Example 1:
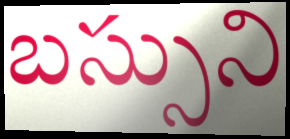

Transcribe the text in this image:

బస్సుని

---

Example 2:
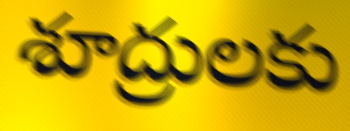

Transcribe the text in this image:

శూద్రులకు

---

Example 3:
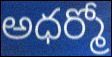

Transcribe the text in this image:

అధర్మో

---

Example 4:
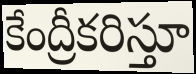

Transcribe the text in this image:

కేంద్రీకరిస్తూ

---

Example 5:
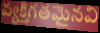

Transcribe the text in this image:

వ్యక్తిగతమైనవి